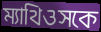
ম্যাথিওসকে